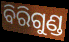
ବିରିଗୁଣ୍ଡ